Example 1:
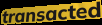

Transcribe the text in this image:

transacted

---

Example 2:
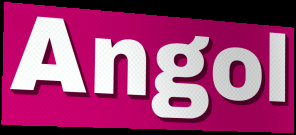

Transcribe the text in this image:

Angol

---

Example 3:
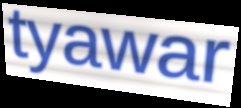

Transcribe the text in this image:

tyawar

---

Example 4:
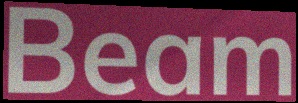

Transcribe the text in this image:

Beam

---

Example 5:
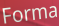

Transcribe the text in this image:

Forma